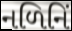
નળિનિં